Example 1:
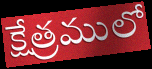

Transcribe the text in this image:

క్షేత్రములో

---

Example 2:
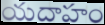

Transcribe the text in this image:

యదాహం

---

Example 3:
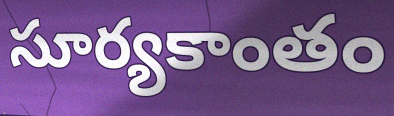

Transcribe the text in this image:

సూర్యకాంతం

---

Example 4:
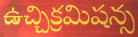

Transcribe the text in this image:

ఉచ్చిక్రమిషన్స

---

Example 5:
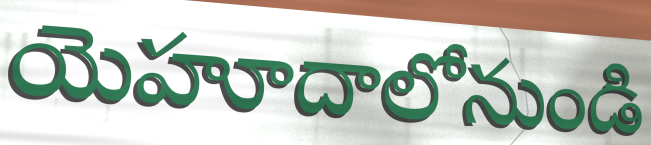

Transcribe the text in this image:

యెహూదాలోనుండి